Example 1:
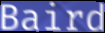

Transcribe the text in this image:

Baird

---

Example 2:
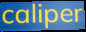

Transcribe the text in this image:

caliper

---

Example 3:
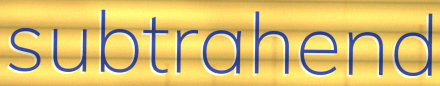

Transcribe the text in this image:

subtrahend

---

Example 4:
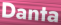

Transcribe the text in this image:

Danta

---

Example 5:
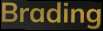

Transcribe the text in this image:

Brading